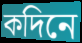
কদিনে